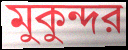
মুকুন্দর